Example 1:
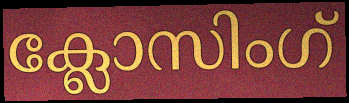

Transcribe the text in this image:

ക്ലോസിംഗ്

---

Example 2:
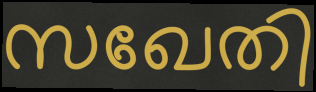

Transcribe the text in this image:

സഖേതി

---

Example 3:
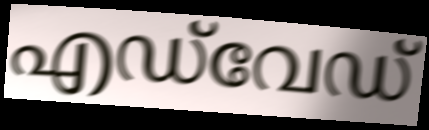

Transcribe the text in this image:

എഡ്‌വേഡ്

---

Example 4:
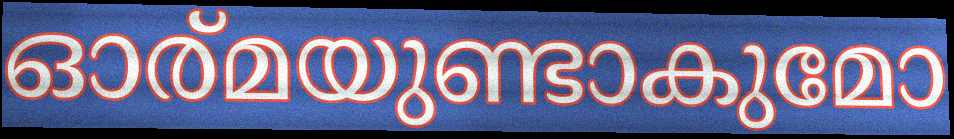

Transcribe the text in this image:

ഓര്മയുണ്ടാകുമോ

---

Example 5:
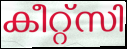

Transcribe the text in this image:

കീറ്റ്സി